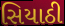
સિયાઠી